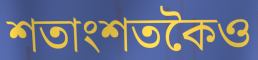
শতাংশতকৈও